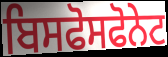
ਬਿਸਫੋਸਫੋਨੇਟ